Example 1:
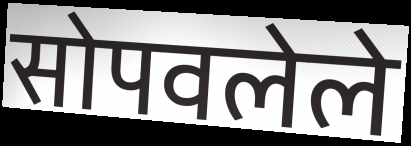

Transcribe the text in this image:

सोपवलेले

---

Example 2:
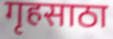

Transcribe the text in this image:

गृहसाठा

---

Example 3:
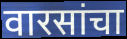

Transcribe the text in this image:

वारसांचा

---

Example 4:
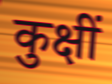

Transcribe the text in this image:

कुक्षीं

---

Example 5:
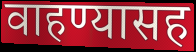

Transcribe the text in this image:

वाहण्यासह